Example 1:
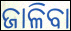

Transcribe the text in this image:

ଜାଳିବା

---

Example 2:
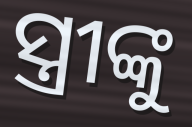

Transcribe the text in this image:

ସ୍ତ୍ରୀଙ୍କୁ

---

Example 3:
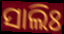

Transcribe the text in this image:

ସାଲିଃ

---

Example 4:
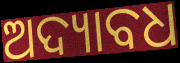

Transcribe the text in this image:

ଅଦ୍ୟାବଧ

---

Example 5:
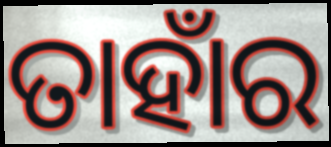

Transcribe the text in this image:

ତାହାଁର